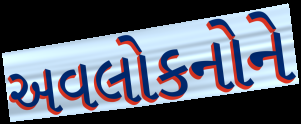
અવલોકનોને